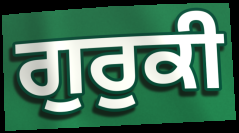
ਗੁਰੁਕੀ